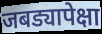
जबड्यापेक्षा